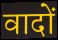
वादों